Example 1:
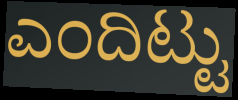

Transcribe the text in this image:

ಎಂದಿಟ್ಟು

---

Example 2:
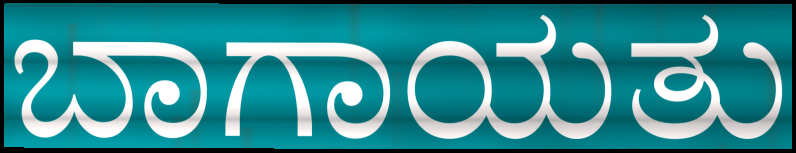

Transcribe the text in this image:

ಬಾಗಾಯತು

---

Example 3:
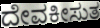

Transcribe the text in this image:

ದೇವಕೀಸುತ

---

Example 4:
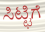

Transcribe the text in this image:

ಸಿಟ್ಟಿಗೆ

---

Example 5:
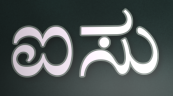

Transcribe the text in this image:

ಐಸು